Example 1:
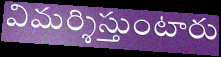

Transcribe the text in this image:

విమర్శిస్తుంటారు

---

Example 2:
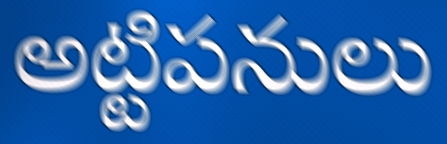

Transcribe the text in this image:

అట్టిపనులు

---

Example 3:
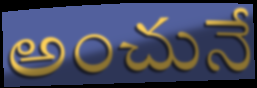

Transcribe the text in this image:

అంచునే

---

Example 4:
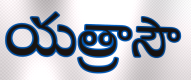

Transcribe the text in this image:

యత్రాసౌ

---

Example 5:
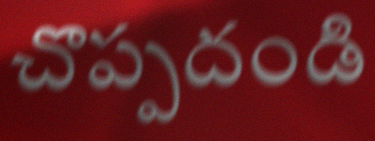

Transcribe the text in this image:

చొప్పదండి